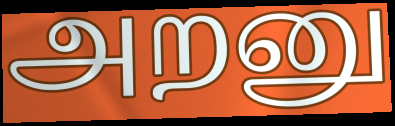
அறனு